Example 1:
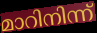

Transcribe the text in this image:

മാറിനിന്ന്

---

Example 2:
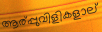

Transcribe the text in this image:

ആര്പ്പുവിളികളാല്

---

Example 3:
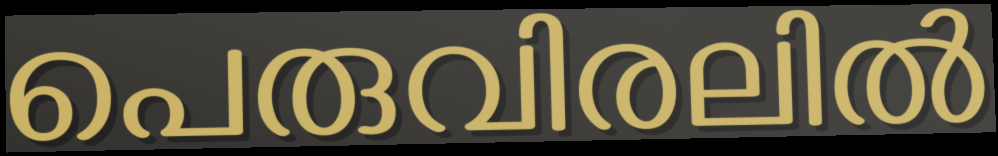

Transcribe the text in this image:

പെരുവിരലിൽ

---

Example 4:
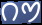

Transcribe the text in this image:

റൗ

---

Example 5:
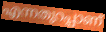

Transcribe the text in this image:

എന്നതുറപ്പാണ്